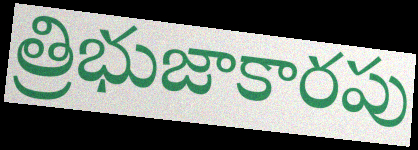
త్రిభుజాకారపు